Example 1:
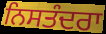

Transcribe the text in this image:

ਨਿਸਤੰਦਰਾ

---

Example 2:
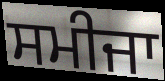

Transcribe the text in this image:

ਸਮੀਜਾ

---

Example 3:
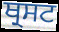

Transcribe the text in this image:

ਥ੍ਰਸਟ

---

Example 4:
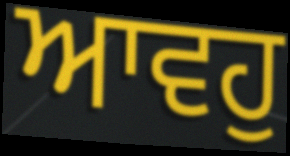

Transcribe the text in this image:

ਆਵਹੁ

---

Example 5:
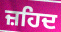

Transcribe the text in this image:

ਜ਼ਹਿਦ